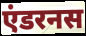
एंडरनस